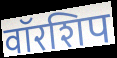
वॉरशिप